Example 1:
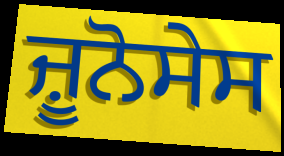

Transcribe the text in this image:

ਜ਼ੂਨੋਸੇਸ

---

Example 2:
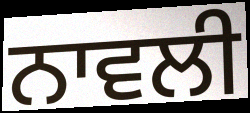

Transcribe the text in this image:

ਨਾਵਲੀ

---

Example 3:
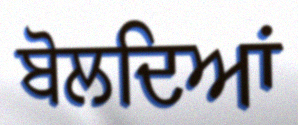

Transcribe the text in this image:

ਬੋਲਦਿਆਂ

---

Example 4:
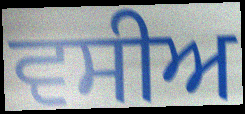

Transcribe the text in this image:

ਵਸੀਅ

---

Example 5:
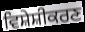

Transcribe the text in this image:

ਵਿਸ਼ੇਸ਼ੀਕਰਣ